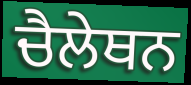
ਚੈਲੇਥਨ